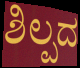
ಶಿಲ್ಪದ